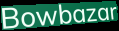
Bowbazar